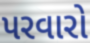
પરવારો